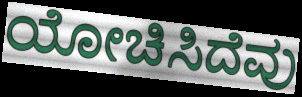
ಯೋಚಿಸಿದೆವು